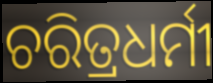
ଚରିତ୍ରଧର୍ମୀ